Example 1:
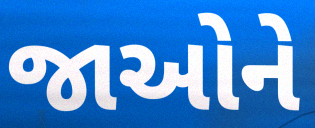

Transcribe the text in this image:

જાઓને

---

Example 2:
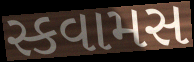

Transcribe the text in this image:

સ્કવામસ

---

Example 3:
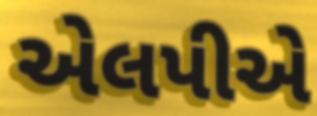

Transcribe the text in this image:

એલપીએ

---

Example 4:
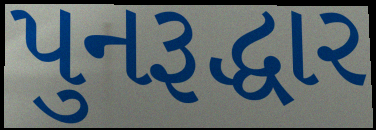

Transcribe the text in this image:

પુનરૂદ્ધાર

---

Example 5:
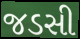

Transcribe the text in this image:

જડસી